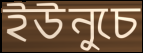
ইউনুচে